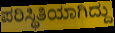
ಪರಿಸ್ಥಿತಿಯಾಗಿದ್ದು